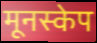
मूनस्केप